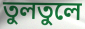
তুলতুলে